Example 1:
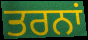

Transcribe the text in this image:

ਤਰਨਾਂ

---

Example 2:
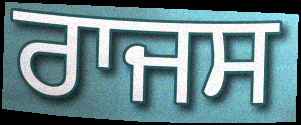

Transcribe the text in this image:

ਰਾਜਸ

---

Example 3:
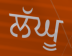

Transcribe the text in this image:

ਲੱਘੂ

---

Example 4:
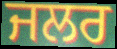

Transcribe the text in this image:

ਜਲਰ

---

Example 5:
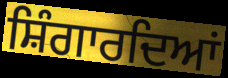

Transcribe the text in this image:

ਸ਼ਿੰਗਾਰਦਿਆਂ